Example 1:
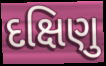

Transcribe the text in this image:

દક્ષિણુ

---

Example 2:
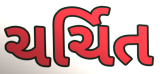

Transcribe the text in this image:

ચર્ચિત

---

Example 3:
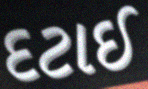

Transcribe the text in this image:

દટાઈ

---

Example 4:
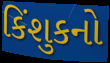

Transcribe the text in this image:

કિંશુકનો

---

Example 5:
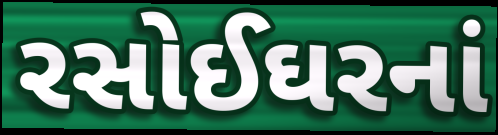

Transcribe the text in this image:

રસોઈઘરનાં